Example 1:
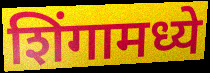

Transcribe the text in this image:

शिंगामध्ये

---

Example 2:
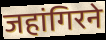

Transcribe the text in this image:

जहांगिरने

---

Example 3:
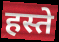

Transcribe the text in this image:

हस्ते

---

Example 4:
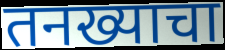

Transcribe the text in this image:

तनख्याचा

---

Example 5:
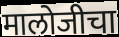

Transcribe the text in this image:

मालोजीचा